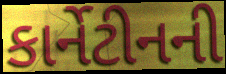
કાર્નેટીનની